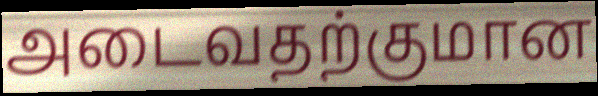
அடைவதற்குமான